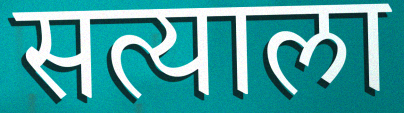
सत्याला